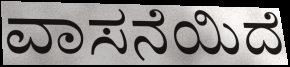
ವಾಸನೆಯಿದೆ